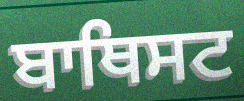
ਬਾਥਿਸਟ